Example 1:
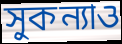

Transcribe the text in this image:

সুকন্যাও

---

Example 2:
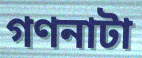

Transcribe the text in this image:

গণনাটা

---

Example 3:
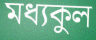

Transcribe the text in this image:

মধ্যকুল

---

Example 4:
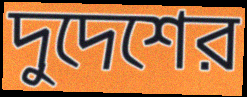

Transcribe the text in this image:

দুদেশের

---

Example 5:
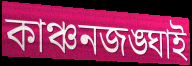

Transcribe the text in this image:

কাঞ্চনজঙ্ঘাই